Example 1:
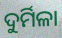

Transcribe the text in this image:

ଦୁର୍ମିଳା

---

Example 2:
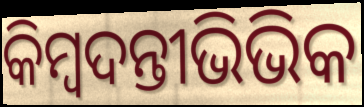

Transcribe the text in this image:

କିମ୍ବଦନ୍ତୀଭିଭିକ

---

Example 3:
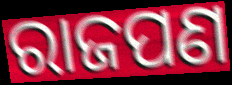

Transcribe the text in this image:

ରାଜପଣ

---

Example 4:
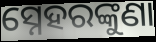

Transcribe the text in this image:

ସ୍ନେହରଙ୍କୁଣା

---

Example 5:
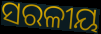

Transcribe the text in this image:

ସରଳୀୟ